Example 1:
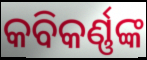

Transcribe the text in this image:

କବିକର୍ଣ୍ଣଙ୍କ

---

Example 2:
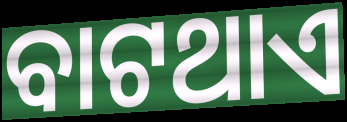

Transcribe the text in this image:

ବାଟଥାଏ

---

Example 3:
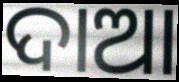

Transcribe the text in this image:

ଦାଆ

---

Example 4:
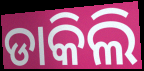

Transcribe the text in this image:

ଡାକିଲି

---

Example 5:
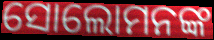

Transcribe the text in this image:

ସୋଲୋମନଙ୍କ